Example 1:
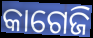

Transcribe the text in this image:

କାଗେଜି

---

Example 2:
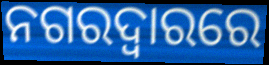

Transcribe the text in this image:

ନଗରଦ୍ୱାରରେ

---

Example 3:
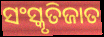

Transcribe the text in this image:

ସଂସ୍କୃତିଜାତ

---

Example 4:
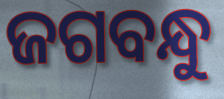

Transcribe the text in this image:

ଜଗବନ୍ଧୁ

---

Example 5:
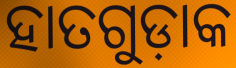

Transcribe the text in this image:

ହାତଗୁଡ଼ାକ